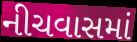
નીચવાસમાં